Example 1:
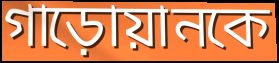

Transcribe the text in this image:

গাড়োয়ানকে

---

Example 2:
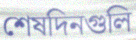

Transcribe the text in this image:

শেষদিনগুলি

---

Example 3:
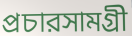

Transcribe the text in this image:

প্রচারসামগ্রী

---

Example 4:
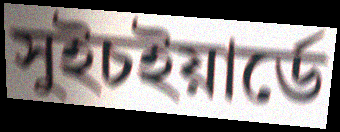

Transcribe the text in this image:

সুইচইয়ার্ডে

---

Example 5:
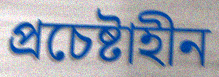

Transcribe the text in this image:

প্রচেষ্টাহীন